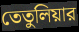
তেতুলিয়ার